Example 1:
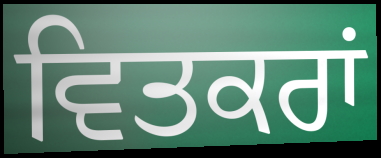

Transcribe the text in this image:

ਵਿਤਕਰਾਂ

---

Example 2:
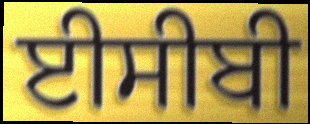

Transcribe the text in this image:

ਈਸੀਬੀ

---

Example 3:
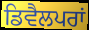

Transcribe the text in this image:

ਡਿਵੈਲਪਰਾਂ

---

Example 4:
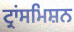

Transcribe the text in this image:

ਟ੍ਰਾਂਸਮਿਸ਼ਨ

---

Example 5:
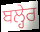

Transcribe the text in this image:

ਬਲ੍ਹੇਰ